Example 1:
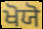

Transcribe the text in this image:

ਖੋਯੋ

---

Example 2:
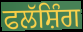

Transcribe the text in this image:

ਫਲੱਸ਼ਿੰਗ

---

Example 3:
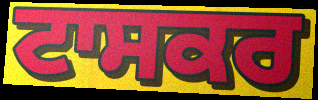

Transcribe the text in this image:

ਟਾਸਕਰ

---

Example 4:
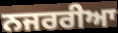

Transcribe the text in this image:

ਨਜਰਰੀਆ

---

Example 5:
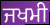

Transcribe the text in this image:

ਜਖਮੀ